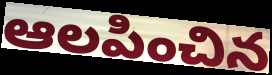
ఆలపించిన